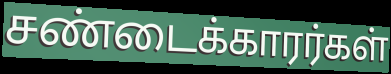
சண்டைக்காரர்கள்